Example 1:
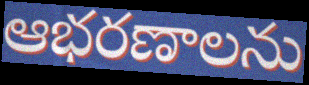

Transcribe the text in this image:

ఆభరణాలను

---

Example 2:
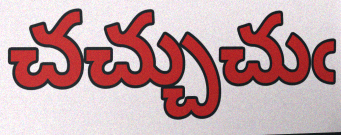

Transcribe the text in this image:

చచ్చుచుఁ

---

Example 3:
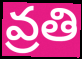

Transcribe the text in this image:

వ్రతి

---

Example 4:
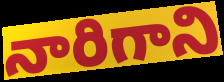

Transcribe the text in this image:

నారిగాని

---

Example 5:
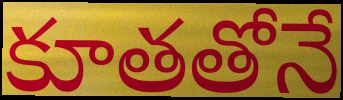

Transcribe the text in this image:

కూతతోనే